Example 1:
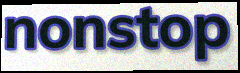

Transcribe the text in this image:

nonstop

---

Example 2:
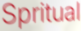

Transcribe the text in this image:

Spritual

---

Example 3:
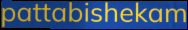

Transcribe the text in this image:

pattabishekam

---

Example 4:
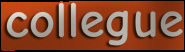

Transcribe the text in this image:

collegue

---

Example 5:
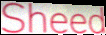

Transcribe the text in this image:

Sheed